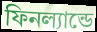
ফিনল্যান্ডে